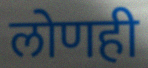
लोणही